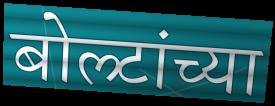
बोल्टांच्या